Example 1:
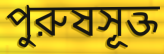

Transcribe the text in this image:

পুৰুষসূক্ত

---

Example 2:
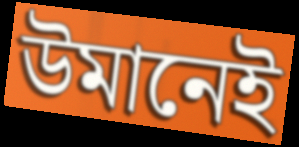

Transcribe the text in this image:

উমানেই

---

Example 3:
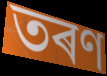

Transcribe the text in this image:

তৰণ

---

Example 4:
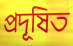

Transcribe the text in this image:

প্ৰদূষিত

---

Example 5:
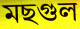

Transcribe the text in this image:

মছগুল